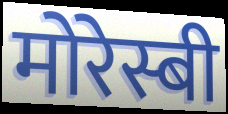
मोरेस्बी